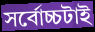
সর্বোচ্চটাই